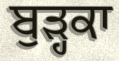
ਬੁੜ੍ਹਕਾ